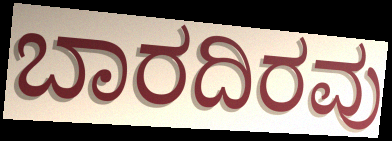
ಬಾರದಿರವು